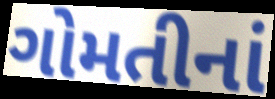
ગોમતીનાં